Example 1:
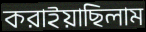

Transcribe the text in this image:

করাইয়াছিলাম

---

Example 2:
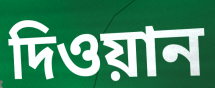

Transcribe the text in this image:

দিওয়ান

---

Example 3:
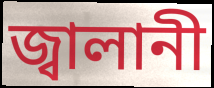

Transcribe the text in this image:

জ্বালানী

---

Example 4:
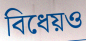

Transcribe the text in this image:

বিধেয়ও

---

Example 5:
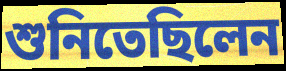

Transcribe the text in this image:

শুনিতেছিলেন